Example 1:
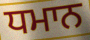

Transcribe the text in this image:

ਧਮਾਨ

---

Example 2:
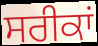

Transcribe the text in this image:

ਸਰੀਕਾਂ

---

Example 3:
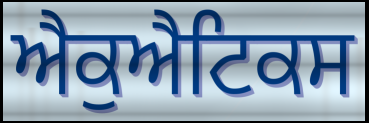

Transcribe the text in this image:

ਐਕੁਐਟਿਕਸ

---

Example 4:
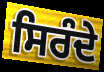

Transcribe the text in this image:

ਸਿਰੰਦੇ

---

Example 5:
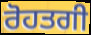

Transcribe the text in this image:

ਰੋਹਤਗੀ